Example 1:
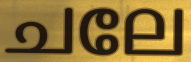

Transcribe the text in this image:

ചലേ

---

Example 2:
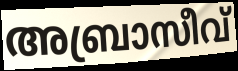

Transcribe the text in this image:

അബ്രാസീവ്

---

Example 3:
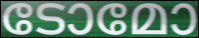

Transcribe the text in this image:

ടോമോ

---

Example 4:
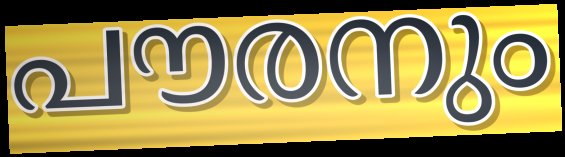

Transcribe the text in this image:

പൗരനും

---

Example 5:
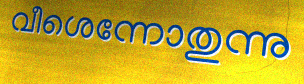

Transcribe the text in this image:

വീശെന്നോതുന്നു